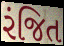
રંજિત